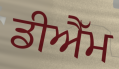
ਡੀਐੱਮ